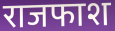
राजफाश